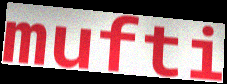
mufti